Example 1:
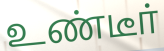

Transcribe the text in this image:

உண்டீர்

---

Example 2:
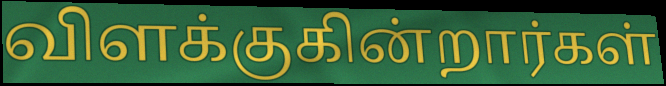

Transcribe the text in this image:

விளக்குகின்றார்கள்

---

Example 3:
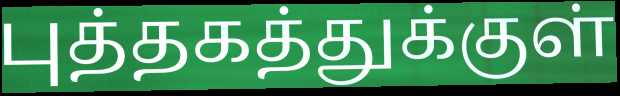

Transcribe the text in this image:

புத்தகத்துக்குள்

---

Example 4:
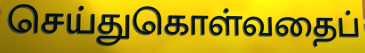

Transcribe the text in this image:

செய்துகொள்வதைப்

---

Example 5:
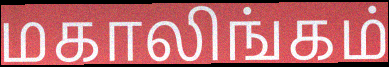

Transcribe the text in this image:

மகாலிங்கம்